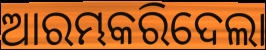
ଆରମ୍ଭକରିଦେଲା